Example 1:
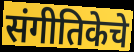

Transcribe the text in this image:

संगीतिकेचे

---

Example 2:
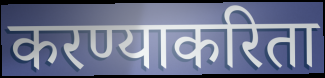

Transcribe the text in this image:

करण्याकरिता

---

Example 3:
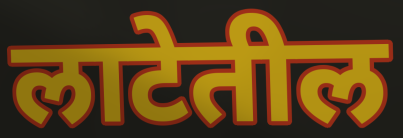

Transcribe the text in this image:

लाटेतील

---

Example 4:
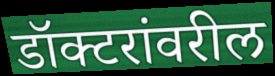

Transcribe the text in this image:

डॉक्टरांवरील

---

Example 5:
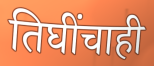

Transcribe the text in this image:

तिघींचाही